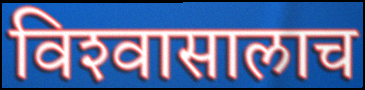
विश्वासालाच